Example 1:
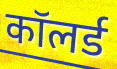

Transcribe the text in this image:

कॉलर्ड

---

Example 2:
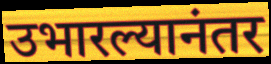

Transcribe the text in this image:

उभारल्यानंतर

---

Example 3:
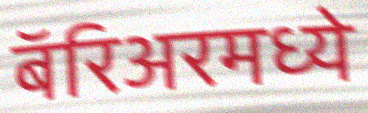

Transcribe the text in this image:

बॅरिअरमध्ये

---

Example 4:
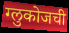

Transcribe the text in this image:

ग्लुकोजची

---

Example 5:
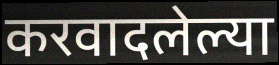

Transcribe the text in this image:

करवादलेल्या